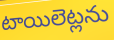
టాయిలెట్లను